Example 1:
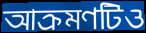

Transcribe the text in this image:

আক্রমণটিও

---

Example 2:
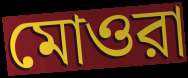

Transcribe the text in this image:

মোওরা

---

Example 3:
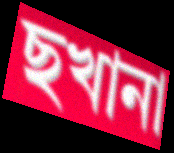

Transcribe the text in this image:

ছখানা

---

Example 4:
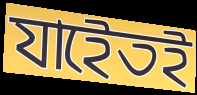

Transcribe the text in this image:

যাইেতই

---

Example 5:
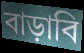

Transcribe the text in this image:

বাড়াবি